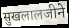
सुखलालजीने